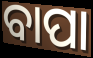
ବାପା